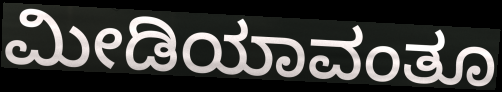
ಮೀಡಿಯಾವಂತೂ